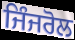
ਜਿੰਜਰੋਲ